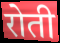
रोती